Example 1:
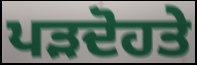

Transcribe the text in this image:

ਪੜਦੋਹਤੇ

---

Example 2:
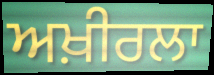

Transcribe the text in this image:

ਅਖ਼ੀਰਲਾ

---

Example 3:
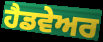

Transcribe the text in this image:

ਹੈਡਵੇਅਰ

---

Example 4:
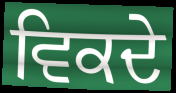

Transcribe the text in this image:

ਵਿਕਦੇ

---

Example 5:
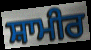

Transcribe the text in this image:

ਸ਼ਾਮੀਰ